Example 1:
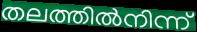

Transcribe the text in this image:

തലത്തിൽനിന്ന്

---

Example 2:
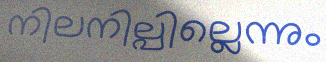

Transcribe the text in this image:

നിലനില്പില്ലെന്നും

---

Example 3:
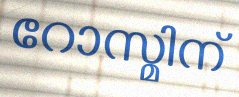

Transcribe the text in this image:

റോസ്മിന്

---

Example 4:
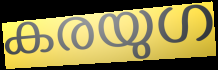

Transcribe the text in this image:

കരയുഗ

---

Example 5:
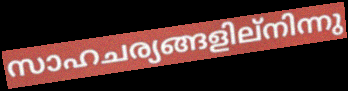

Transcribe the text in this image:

സാഹചര്യങ്ങളില്നിന്നു